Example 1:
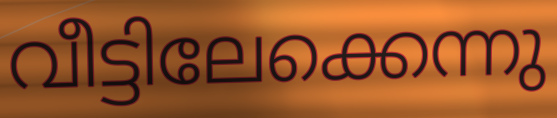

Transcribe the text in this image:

വീട്ടിലേക്കെന്നു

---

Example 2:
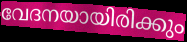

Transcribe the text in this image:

വേദനയായിരിക്കും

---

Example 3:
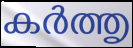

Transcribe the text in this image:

കർത്തൃ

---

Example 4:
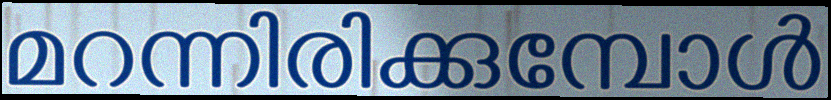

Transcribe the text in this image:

മറന്നിരിക്കുമ്പോൾ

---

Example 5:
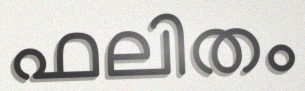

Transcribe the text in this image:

ഫലിതം